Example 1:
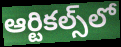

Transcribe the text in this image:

ఆర్టికల్స్‌లో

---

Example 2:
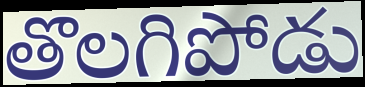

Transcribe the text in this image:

తొలగిపోడు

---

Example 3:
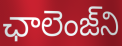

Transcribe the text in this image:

ఛాలెంజ్‌ని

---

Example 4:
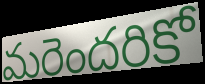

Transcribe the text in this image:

మరెందరికో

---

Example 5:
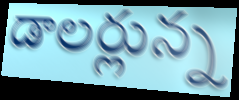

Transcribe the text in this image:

డాలర్లున్న